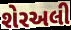
શેરઅલી